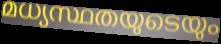
മധ്യസ്ഥതയുടെയും